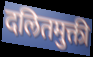
दलितमुक्ती